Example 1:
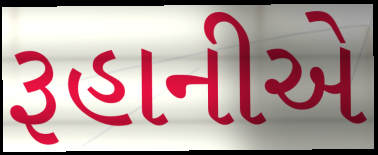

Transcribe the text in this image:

રૂહાનીએ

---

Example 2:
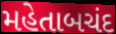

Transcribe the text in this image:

મહેતાબચંદ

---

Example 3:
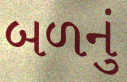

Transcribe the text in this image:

બળનું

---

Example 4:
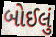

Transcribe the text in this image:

બોઈલું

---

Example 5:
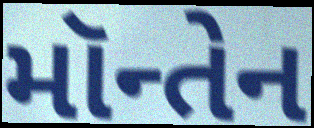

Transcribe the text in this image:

મૉન્તેન